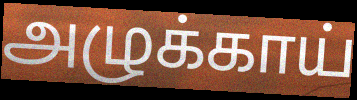
அழுக்காய்